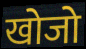
खोजो